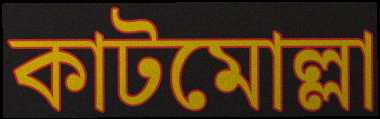
কাটমোল্লা